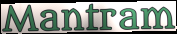
Mantram